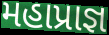
મહાપ્રાજ્ઞ